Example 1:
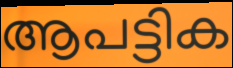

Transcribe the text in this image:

ആപട്ടിക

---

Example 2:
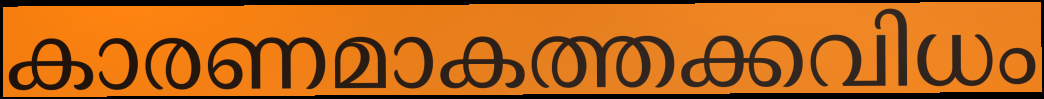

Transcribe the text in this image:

കാരണമാകത്തക്കവിധം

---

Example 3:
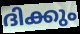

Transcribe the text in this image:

ദിക്കും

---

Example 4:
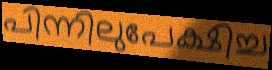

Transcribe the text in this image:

പിന്നിലുപേക്ഷിച്ച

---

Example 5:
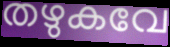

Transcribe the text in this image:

തഴുകവേ